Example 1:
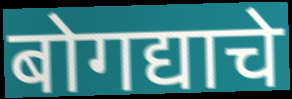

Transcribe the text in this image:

बोगद्याचे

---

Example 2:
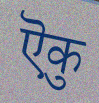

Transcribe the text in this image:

ऎकु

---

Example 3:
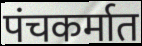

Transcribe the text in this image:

पंचकर्मात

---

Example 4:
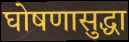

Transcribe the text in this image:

घोषणासुद्धा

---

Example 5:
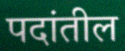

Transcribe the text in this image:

पदांतील